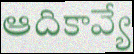
ఆదికావ్యే